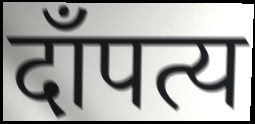
दाँपत्य